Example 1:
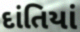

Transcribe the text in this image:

દાંતિયાં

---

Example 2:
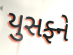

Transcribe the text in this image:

યુસફ્ને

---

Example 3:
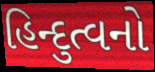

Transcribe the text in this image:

હિન્દુત્વનો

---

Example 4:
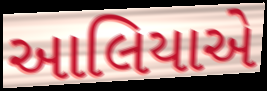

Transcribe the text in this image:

આલિયાએ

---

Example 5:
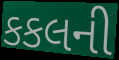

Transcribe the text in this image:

કકલની